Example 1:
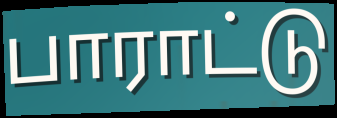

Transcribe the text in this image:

பாராட்டு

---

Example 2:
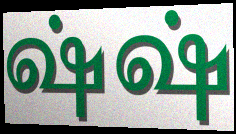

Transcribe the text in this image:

ஷ்ஷ்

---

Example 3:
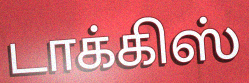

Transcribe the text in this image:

டாக்கிஸ்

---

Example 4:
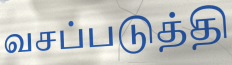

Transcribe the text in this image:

வசப்படுத்தி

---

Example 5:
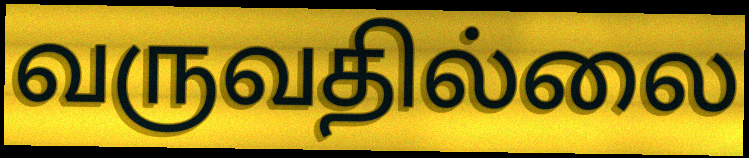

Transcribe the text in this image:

வருவதில்லை